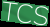
TCS